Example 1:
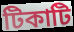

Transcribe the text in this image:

টিকাটি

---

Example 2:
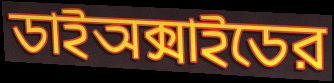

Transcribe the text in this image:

ডাইঅক্সাইডের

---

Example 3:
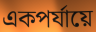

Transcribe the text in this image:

একপর্যায়ে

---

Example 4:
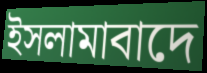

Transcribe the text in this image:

ইসলামাবাদে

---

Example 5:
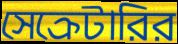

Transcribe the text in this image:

সেক্রেটারির